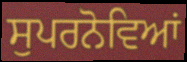
ਸੁਪਰਨੋਵਿਆਂ